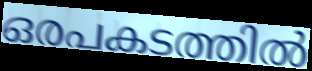
ഒരപകടത്തിൽ